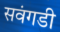
सवंगडी